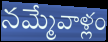
నమ్మేవాళ్లం